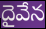
దైవేన